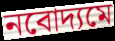
নবোদ্যমে